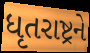
ધૃતરાષ્ટ્રને